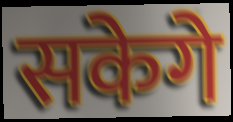
सकेगे